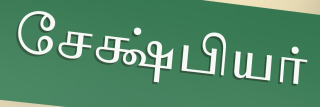
சேக்ஷ்பியர்